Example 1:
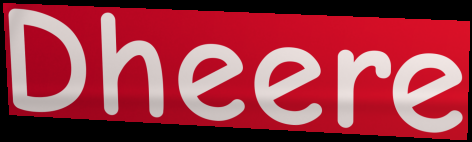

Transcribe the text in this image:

Dheere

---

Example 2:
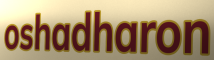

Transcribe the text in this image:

oshadharon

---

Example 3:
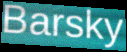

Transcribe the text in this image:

Barsky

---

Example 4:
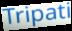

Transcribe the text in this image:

Tripati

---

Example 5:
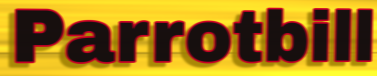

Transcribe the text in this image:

Parrotbill